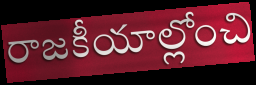
రాజకీయాల్లోంచి